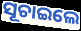
ସୂଚାଇଲେ